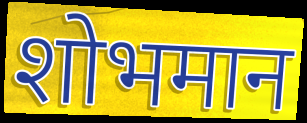
शोभमान